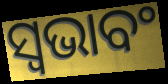
ସ୍ଵଭାବଂ